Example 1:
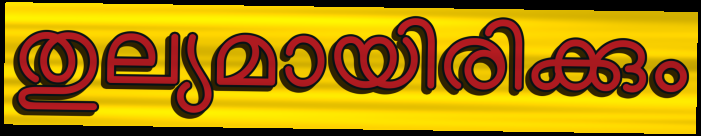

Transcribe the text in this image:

തുല്യമായിരിക്കും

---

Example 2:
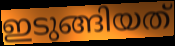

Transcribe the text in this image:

ഇടുങ്ങിയത്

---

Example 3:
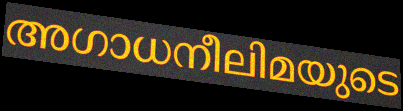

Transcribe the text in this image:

അഗാധനീലിമയുടെ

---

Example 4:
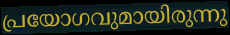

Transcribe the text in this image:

പ്രയോഗവുമായിരുന്നു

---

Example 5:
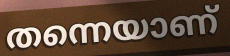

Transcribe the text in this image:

തന്നെയാണ്